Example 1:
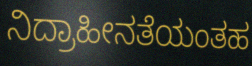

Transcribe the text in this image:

ನಿದ್ರಾಹೀನತೆಯಂತಹ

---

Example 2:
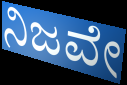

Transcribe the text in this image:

ನಿಜವೇ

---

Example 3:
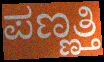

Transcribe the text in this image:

ಪಣ್ಣತ್ತಿ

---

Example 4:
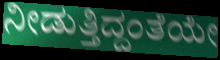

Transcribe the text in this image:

ನೀಡುತ್ತಿದ್ದಂತೆಯೇ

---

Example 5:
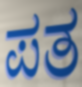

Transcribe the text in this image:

ಪತ